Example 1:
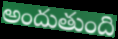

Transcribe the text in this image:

అందుతుంది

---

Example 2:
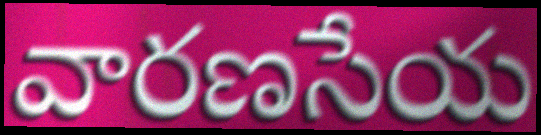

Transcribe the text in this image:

వారణసేయ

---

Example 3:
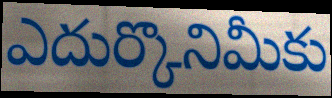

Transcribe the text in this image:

ఎదుర్కొనిమీకు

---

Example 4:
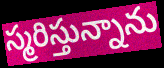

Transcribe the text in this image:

స్మరిస్తున్నాను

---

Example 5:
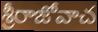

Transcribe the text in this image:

శ్రీరాజోవాచ